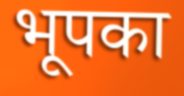
भूपका